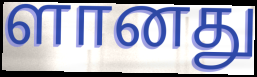
ளானது